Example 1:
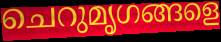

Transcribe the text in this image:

ചെറുമൃഗങ്ങളെ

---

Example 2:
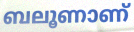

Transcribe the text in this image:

ബലൂണാണ്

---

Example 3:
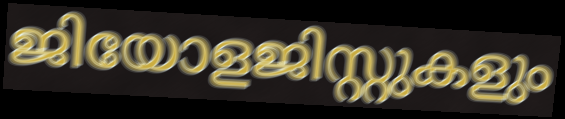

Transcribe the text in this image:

ജിയോളജിസ്റ്റുകളും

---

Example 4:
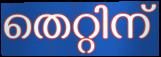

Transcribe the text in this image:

തെറ്റിന്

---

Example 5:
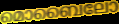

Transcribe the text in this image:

മൊബൈലോ